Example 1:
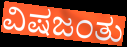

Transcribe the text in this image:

ವಿಷಜಂತು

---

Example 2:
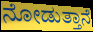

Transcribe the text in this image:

ನೋಡುತ್ತಾನೆ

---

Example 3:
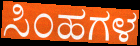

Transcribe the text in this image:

ಸಿಂಹಗಳ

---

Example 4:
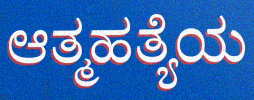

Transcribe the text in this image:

ಆತ್ಮಹತ್ಯೆಯ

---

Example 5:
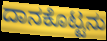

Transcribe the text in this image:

ದಾನಕೊಟ್ಟನು